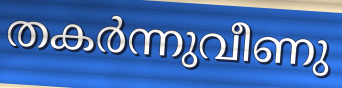
തകർന്നുവീണു